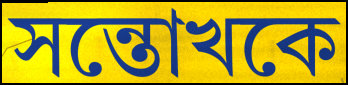
সন্তোখকে